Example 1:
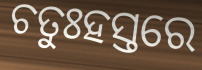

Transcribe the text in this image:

ଚତୁଃହସ୍ତରେ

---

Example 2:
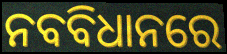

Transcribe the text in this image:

ନବବିଧାନରେ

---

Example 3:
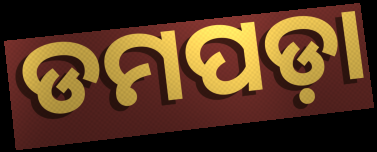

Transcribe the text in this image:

ଡମପଡ଼ା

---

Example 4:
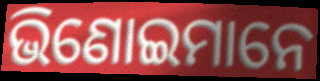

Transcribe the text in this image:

ଭିଣୋଇମାନେ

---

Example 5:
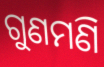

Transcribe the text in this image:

ଗୁଣମଣି